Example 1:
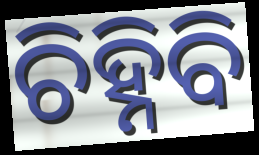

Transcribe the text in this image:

ଚିହ୍ନିବି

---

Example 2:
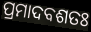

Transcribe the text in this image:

ପ୍ରମାଦବଶତଃ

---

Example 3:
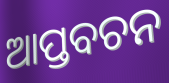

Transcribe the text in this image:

ଆପ୍ତବଚନ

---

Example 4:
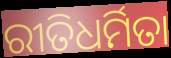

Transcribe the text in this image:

ରୀତିଧର୍ମିତା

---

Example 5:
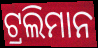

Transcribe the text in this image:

ଟ୍ରଲିମାନ